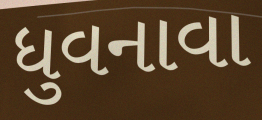
ધુવનાવા